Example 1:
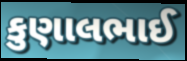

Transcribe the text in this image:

કુણાલભાઈ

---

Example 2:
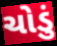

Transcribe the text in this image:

ચોડું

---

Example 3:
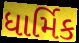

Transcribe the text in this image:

ધાર્મિક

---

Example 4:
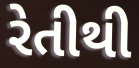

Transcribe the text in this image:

રેતીથી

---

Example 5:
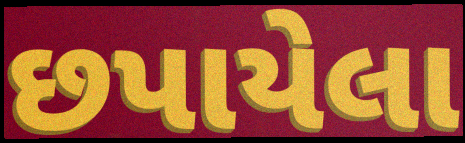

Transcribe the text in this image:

છપાયેલા